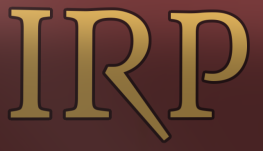
IRP